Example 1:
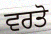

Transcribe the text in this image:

ਵਰਤੋ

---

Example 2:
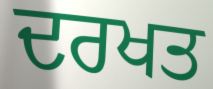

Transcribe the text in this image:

ਦਰਖਤ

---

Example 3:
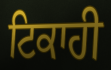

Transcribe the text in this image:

ਟਿਕਾਹੀ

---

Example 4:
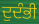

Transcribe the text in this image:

ਦੁਦੰਭੀ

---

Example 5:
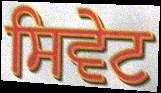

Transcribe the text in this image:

ਸਿਵੇਟ